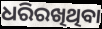
ଧରିରଖିଥିବା